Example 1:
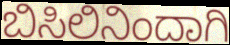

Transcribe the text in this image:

ಬಿಸಿಲಿನಿಂದಾಗಿ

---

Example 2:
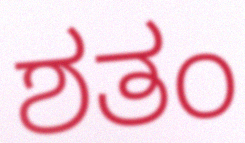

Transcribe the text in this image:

ಶತಂ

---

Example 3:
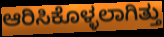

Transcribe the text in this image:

ಆರಿಸಿಕೊಳ್ಳಲಾಗಿತ್ತು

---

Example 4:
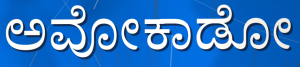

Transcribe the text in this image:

ಅವೋಕಾಡೋ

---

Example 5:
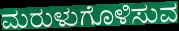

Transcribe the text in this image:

ಮರುಳುಗೊಳಿಸುವ